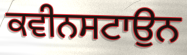
ਕਵੀਨਸਟਾਉਨ